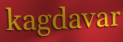
kagdavar